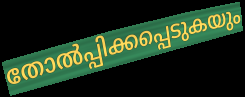
തോൽപ്പിക്കപ്പെടുകയും